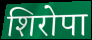
शिरोपा